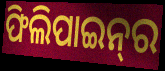
ଫିଲିପାଇନ୍‌ର